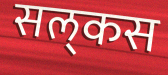
सल्कस